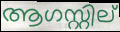
ആഗസ്റ്റില്